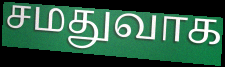
சமதுவாக